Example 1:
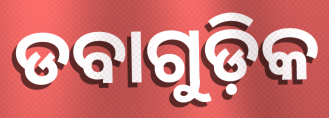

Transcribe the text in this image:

ଡବାଗୁଡ଼ିକ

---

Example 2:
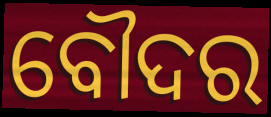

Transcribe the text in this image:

ବୌଦର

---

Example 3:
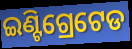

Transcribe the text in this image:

ଇଣ୍ଟିଗ୍ରେଟେଡ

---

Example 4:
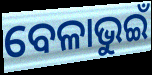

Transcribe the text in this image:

ବେଳାଭୁଇଁ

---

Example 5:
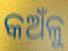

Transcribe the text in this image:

କଅଁଳୁ